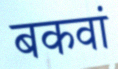
बकवां